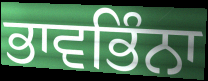
ਭਾਵਭਿੰਨਾ